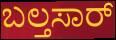
ಬಲ್ತಸಾರ್